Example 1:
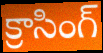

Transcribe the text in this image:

క్రాసింగ్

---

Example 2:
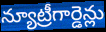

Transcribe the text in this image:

న్యూట్రీగార్డెన్లు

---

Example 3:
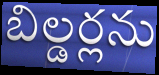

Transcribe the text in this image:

బిల్డర్లను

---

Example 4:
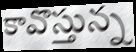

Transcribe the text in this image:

కావొస్తున్న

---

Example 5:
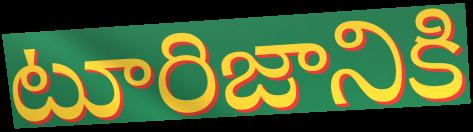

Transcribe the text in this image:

టూరిజానికి